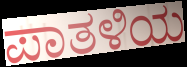
ಪಾತಳಿಯ